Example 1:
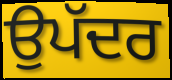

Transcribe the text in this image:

ਉਪੱਦਰ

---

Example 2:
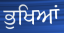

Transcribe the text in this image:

ਭੁਖਿਆਂ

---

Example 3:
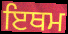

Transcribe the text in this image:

ਇਥਮ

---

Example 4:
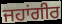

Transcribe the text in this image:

ਜਹਾਂਗੀਰ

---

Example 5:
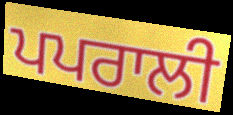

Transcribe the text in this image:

ਪਪਰਾਲੀ